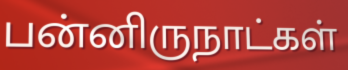
பன்னிருநாட்கள்